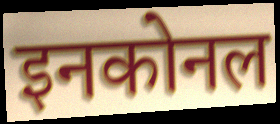
इनकोनल